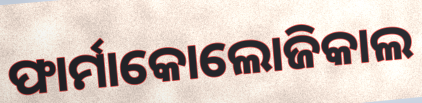
ଫାର୍ମାକୋଲୋଜିକାଲ